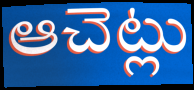
ఆచెట్లు